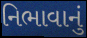
નિભાવાનું